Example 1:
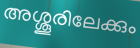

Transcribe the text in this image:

അശ്ശൂരിലേക്കും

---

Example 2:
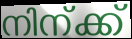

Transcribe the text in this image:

നിന്ക്ക്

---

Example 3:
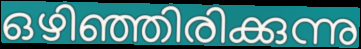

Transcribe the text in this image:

ഒഴിഞ്ഞിരിക്കുന്നു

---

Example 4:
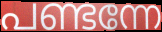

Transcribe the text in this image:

പണ്ടന്നേ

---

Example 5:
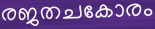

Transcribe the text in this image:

രജതചകോരം